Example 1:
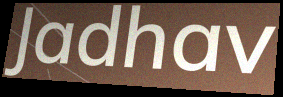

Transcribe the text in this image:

Jadhav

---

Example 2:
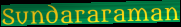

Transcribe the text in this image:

Sundararaman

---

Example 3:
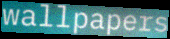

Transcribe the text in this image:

wallpapers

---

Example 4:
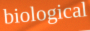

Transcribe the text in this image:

biological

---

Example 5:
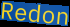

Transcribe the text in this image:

Redon